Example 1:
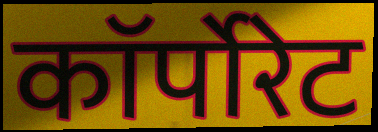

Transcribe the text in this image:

कॉर्पोरेट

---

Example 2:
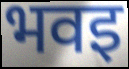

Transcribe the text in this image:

भवइ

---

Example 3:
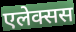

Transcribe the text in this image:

एलेक्सस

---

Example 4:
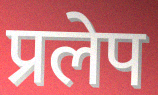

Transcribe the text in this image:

प्रलेप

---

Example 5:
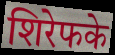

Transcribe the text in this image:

शिरेफके